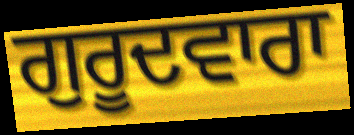
ਗੁਰੂਦਵਾਰਾ